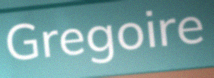
Gregoire